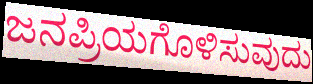
ಜನಪ್ರಿಯಗೊಳಿಸುವುದು